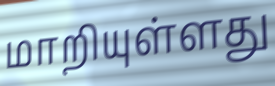
மாறியுள்ளது